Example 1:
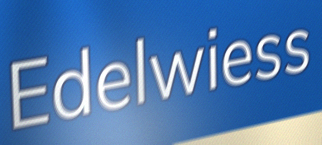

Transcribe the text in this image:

Edelwiess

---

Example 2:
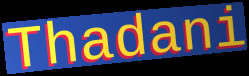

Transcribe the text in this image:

Thadani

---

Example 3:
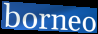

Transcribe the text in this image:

borneo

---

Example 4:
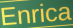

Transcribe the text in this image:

Enrica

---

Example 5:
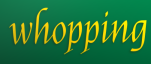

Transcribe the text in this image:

whopping